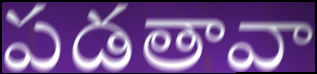
పడతావా